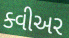
ક્વીઅર